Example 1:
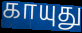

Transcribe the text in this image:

காயுது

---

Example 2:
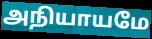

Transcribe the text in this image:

அநியாயமே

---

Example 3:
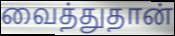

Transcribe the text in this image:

வைத்துதான்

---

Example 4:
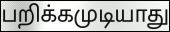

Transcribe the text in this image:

பறிக்கமுடியாது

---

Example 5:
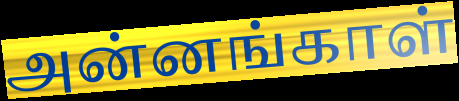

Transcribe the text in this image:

அன்னங்காள்